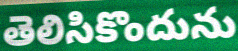
తెలిసికొందును